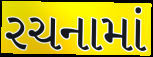
રચનામાં